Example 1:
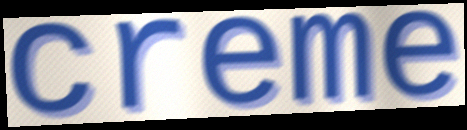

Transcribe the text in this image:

creme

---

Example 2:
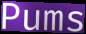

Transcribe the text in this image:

Pums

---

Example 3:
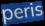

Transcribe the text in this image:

peris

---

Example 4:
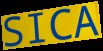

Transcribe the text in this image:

SICA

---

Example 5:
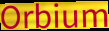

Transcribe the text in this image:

Orbium